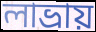
লাভ্ৰায়